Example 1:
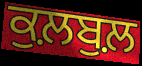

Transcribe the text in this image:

ਕੁਲ਼ਬੁਲ਼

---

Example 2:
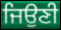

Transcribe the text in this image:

ਜਿਉਣੀ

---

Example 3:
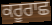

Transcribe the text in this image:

ਕਰੂਰਾਛ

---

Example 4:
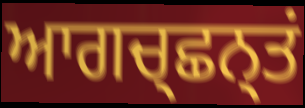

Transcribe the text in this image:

ਆਗਚ੍ਛਨ੍ਤਂ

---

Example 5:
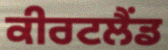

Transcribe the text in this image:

ਕੀਰਟਲੈਂਡ